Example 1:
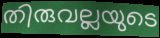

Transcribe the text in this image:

തിരുവല്ലയുടെ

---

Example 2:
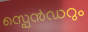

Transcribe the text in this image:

സ്പെൻഡറും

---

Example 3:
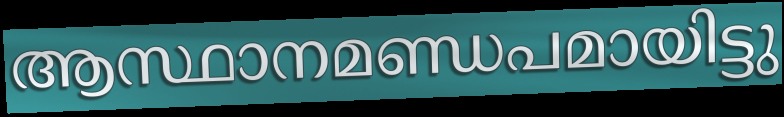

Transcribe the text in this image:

ആസ്ഥാനമണ്ഡപമായിട്ടു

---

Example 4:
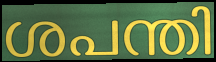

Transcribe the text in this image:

ശപന്തി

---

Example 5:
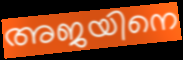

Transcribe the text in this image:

അജയിനെ